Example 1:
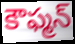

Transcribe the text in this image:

కౌఫ్మన్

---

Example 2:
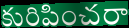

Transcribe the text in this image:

కురిపించరా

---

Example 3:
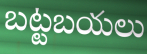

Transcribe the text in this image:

బట్టబయలు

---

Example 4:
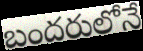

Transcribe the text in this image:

బందరులోనే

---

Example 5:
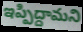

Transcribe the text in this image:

ఇప్పిద్దామని